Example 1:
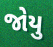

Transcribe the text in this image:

જોયુ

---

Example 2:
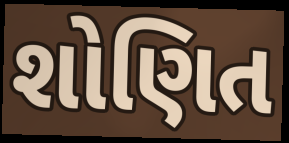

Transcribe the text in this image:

શોણિત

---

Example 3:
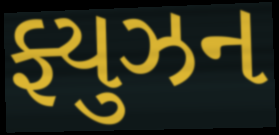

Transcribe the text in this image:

ફ્યુઝન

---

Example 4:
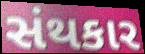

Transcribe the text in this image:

સંથકાર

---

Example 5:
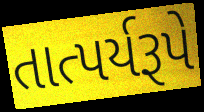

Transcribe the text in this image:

તાત્પર્યરૂપે